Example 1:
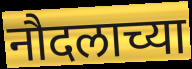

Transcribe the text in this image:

नौदलाच्या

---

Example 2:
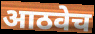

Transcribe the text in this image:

आठवेच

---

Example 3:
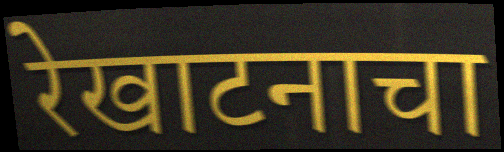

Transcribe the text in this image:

रेखाटनाचा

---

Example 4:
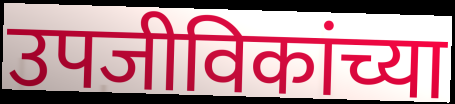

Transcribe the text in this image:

उपजीविकांच्या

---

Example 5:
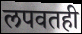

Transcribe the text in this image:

लपवतही